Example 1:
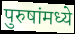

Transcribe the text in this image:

पुरुषांमध्ये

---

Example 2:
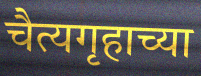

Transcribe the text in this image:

चैत्यगृहाच्या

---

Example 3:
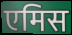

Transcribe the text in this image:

एमिस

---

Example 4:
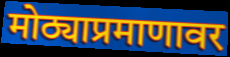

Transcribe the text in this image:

मोठ्याप्रमाणावर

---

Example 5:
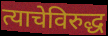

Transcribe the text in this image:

त्याचेविरुद्ध